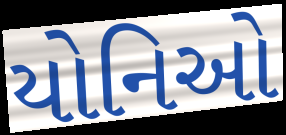
યોનિઓ